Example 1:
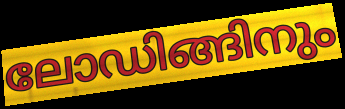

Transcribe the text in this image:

ലോഡിങ്ങിനും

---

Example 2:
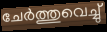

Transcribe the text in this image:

ചേർത്തുവെച്ചു്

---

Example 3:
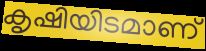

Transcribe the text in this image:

കൃഷിയിടമാണ്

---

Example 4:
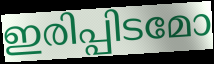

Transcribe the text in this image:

ഇരിപ്പിടമോ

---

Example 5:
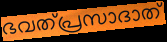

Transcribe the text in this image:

ഭവത്പ്രസാദാത്